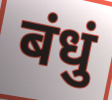
बंधुं